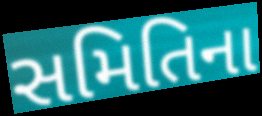
સમિતિના